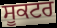
ਸੂਕਟਰ